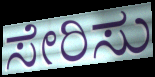
ಸೇರಿಸು